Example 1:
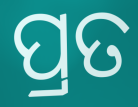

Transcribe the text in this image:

ପ୍ରତ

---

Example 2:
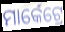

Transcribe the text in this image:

ମାର୍କେଟ୍ରେ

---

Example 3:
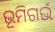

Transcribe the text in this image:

ଭୂମିଗର୍ଭ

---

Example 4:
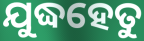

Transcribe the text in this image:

ଯୁଦ୍ଧହେତୁ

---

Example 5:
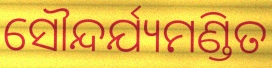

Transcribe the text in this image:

ସୌନ୍ଦର୍ଯ୍ୟମଣ୍ଡିତ